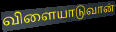
விளையாடுவான்